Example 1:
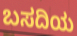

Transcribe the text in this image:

ಬಸದಿಯ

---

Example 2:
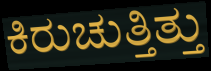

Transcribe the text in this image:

ಕಿರುಚುತ್ತಿತ್ತು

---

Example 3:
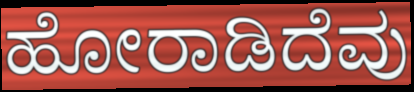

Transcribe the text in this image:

ಹೋರಾಡಿದೆವು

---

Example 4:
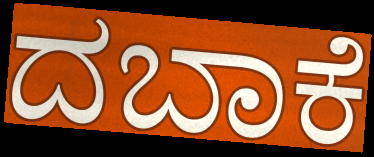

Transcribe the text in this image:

ದಬಾಕೆ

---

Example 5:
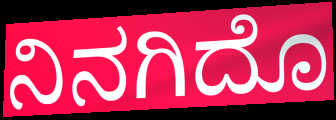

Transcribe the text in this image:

ನಿನಗಿದೊ